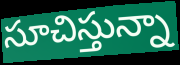
సూచిస్తున్నా